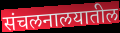
संचलनालयातील